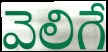
వెలిగే